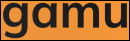
gamu